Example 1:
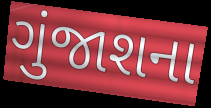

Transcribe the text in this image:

ગુંજાશના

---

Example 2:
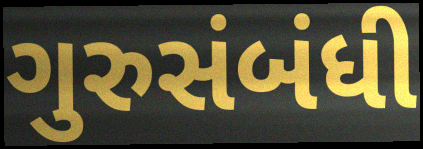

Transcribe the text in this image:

ગુરુસંબંધી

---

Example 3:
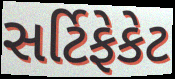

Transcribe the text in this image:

સર્ટિફેકેટ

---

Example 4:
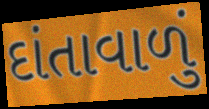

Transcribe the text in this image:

દાંતાવાળું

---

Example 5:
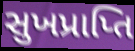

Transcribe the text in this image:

સુખપ્રાપ્તિ